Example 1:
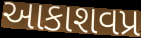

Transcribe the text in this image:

આકાશવપ્ર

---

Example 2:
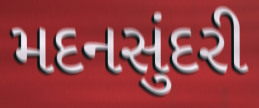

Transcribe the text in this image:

મદનસુંદરી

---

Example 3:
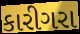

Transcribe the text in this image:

કારીગરા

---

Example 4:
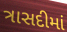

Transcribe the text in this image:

ત્રાસદીમાં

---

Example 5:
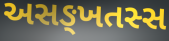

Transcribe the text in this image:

અસઙ્ખતસ્સ